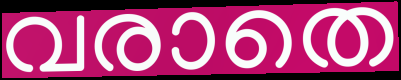
വരാതെ